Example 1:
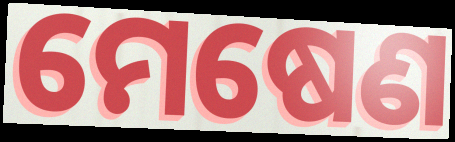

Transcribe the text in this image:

ମେଷେଣ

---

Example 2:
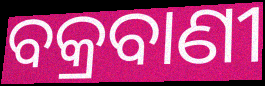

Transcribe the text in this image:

ବକ୍ରବାଣୀ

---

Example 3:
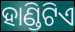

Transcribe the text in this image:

ହାଣ୍ଡିଟିଏ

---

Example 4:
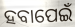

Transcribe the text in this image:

ହବାପେଇଁ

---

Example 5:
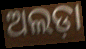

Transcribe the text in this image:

ଅଲଡ଼ା